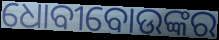
ଧୋବୀବୋଉଙ୍କର